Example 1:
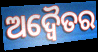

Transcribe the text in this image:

ଅଦ୍ଵୈତର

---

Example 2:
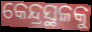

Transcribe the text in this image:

କେନ୍ଦ୍ରସ୍ଥଳକୁ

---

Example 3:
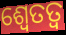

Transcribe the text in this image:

ଶ୍ୱେତତ୍ଵ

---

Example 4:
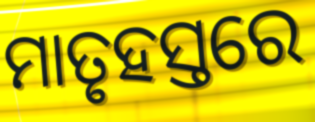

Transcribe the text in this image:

ମାତୃହସ୍ତରେ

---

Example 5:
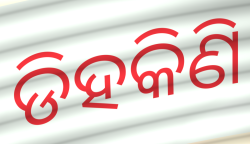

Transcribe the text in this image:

ଡିହକିଣି